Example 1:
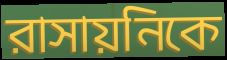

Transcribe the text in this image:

রাসায়নিকে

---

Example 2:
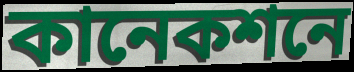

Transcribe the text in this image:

কানেকশনে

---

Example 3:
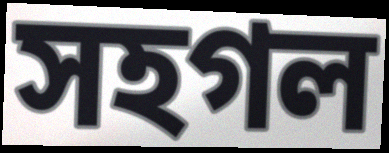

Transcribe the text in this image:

সহগল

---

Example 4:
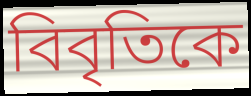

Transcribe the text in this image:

বিবৃতিকে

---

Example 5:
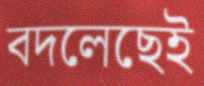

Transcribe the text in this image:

বদলেছেই